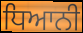
ਧਿਆਨੀ